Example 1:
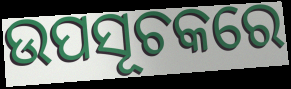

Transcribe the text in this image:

ଉପସୂଚକରେ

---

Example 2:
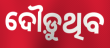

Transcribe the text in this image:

ଦୌଡ଼ୁଥିବ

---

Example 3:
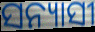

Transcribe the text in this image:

ସନ୍ଯାସୀ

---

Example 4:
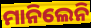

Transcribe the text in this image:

ମାନିଲେନି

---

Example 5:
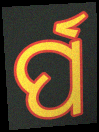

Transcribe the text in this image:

ର୍ପ